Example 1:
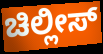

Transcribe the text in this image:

ಚಿಲ್ಲೀಸ್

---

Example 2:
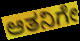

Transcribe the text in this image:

ಆತನಿಗೇ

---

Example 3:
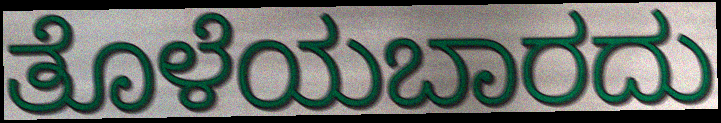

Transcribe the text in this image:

ತೊಳೆಯಬಾರದು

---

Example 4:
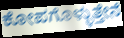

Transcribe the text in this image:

ಕೋಪಗೊಳ್ಳುತ್ತೇನೆ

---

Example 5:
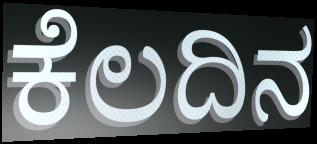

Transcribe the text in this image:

ಕೆಲದಿನ